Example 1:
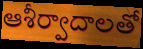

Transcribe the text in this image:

ఆశీర్వాదాలతో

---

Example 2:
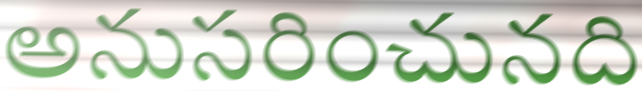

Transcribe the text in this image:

అనుసరించునది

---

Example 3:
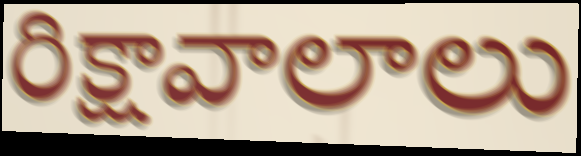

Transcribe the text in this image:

రిక్షావాలాలు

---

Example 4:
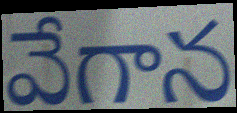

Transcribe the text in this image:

వేగాన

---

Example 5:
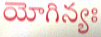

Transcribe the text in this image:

యోగిన్యః